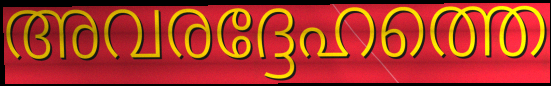
അവരദ്ദേഹത്തെ